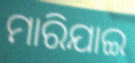
ମାରିଯାଇ